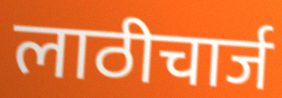
लाठीचार्ज